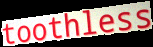
toothless